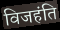
विजहंति